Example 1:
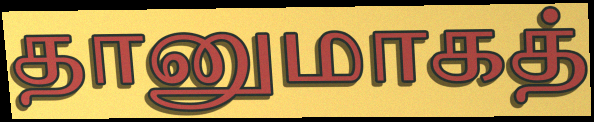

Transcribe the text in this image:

தானுமாகத்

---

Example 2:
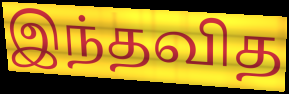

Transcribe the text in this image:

இந்தவித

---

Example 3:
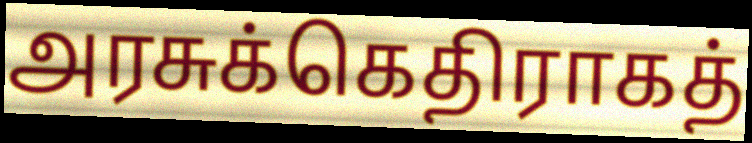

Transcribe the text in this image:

அரசுக்கெதிராகத்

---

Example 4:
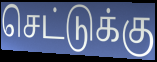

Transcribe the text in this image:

செட்டுக்கு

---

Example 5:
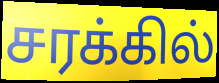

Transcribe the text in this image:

சரக்கில்